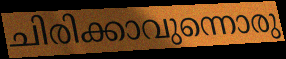
ചിരിക്കാവുന്നൊരു